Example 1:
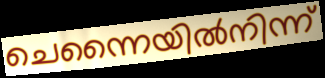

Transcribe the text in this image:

ചെന്നൈയിൽനിന്ന്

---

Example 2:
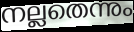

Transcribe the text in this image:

നല്ലതെന്നും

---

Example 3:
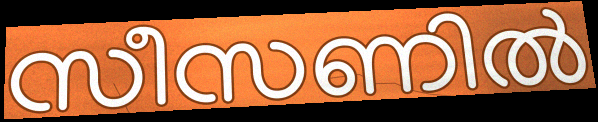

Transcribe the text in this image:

സീസണിൽ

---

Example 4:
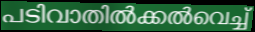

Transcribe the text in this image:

പടിവാതിൽക്കൽവെച്ച്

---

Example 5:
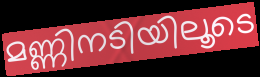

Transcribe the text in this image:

മണ്ണിനടിയിലൂടെ